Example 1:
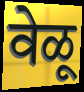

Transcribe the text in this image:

वेळू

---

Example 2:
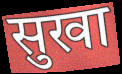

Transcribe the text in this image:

सुखा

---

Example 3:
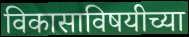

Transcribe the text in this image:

विकासाविषयीच्या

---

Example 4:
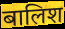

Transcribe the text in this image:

बालिश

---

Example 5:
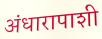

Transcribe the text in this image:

अंधारापाशी